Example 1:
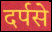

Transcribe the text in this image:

दर्पसे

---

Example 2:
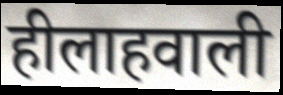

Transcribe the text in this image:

हीलाहवाली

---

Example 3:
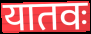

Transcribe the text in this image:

यातवः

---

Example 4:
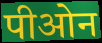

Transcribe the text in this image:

पीओन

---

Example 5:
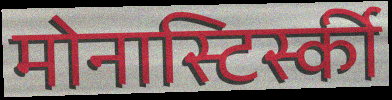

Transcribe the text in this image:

मोनास्टिर्स्की